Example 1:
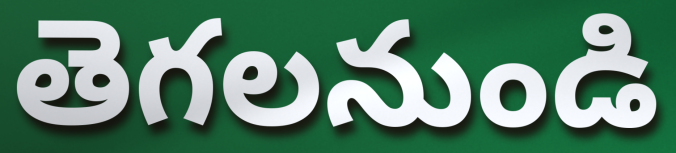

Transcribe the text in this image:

తెగలనుండి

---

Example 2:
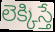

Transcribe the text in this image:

లెక్కిస్తే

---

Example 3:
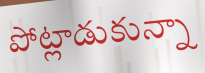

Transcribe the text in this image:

పోట్లాడుకున్నా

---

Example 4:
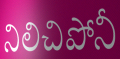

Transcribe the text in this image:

నిలిచిపోనీ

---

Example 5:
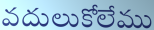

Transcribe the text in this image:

వదులుకోలేము